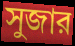
সুজার